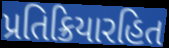
પ્રતિક્રિયારહિત